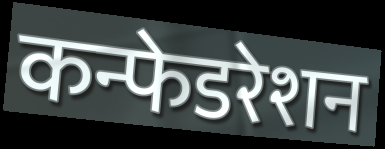
कन्‍फेडरेशन